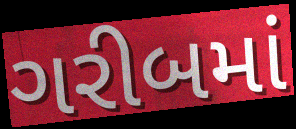
ગરીબમાં